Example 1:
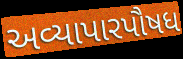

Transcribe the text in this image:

અવ્યાપારપૌષધ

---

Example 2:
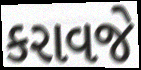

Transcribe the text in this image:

કરાવજે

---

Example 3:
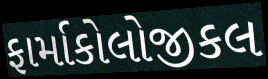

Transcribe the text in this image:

ફાર્માકોલોજીકલ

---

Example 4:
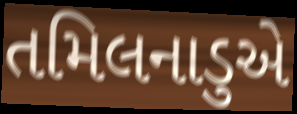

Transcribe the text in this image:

તમિલનાડુએ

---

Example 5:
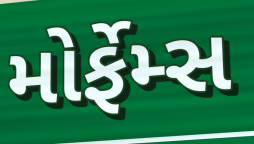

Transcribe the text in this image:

મોર્ફેમ્સ